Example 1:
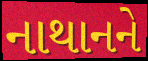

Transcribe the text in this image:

નાથાનને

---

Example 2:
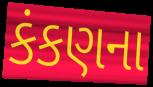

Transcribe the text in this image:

કંકણના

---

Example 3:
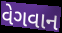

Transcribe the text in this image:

વેગવાન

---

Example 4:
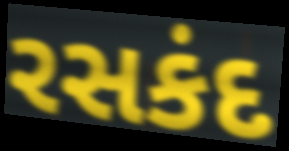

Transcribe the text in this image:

રસકંદ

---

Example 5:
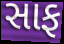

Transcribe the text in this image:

સાફ